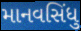
માનવસિંધુ